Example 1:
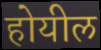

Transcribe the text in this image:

होयील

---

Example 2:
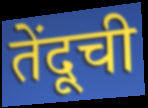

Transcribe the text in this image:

तेंदूची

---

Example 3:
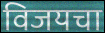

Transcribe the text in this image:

विजयचा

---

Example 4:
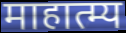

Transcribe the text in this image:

माहात्म्य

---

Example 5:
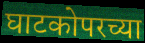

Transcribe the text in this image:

घाटकोपरच्या